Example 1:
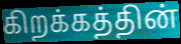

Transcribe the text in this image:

கிறக்கத்தின்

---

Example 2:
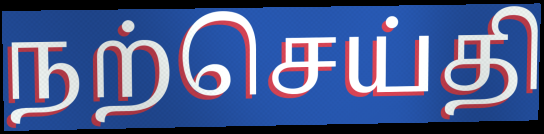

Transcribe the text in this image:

நற்செய்தி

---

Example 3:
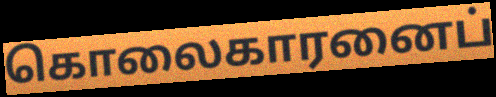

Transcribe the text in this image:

கொலைகாரனைப்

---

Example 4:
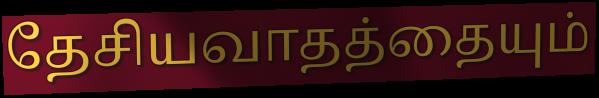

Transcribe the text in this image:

தேசியவாதத்தையும்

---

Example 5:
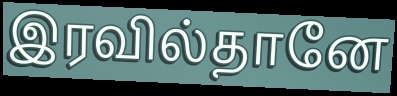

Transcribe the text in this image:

இரவில்தானே